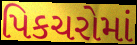
પિકચરોમાં